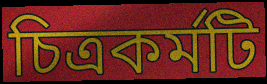
চিত্রকর্মটি